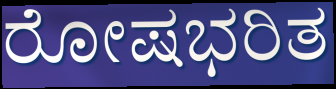
ರೋಷಭರಿತ